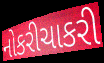
નોકરીચાકરી